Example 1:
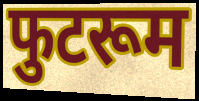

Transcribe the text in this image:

फुटरूम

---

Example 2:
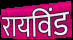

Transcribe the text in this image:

रायविंड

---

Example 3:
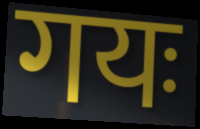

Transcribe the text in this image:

गयः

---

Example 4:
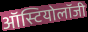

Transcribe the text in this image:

ऑस्टियोलॉजी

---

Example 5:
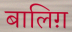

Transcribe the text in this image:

बालिग़